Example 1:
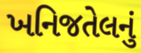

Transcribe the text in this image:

ખનિજતેલનું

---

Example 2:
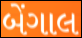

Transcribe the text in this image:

બેંગાલ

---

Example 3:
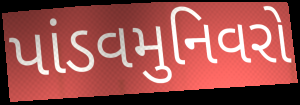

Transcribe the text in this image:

પાંડવમુનિવરો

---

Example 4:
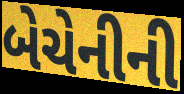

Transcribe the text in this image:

બેચેનીની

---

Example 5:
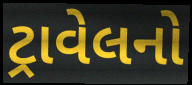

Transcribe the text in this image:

ટ્રાવેલનો